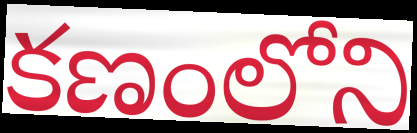
కణంలోని